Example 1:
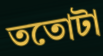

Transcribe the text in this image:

ততোটা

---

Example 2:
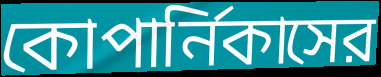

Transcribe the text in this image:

কোপার্নিকাসের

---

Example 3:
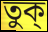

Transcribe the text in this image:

তুক্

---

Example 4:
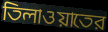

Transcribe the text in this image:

তিলাওয়াতের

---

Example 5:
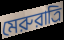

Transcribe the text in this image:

মেরুরাত্রি